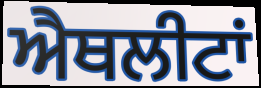
ਐਥਲੀਟਾਂ